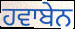
ਹਵਾਬੇਨ